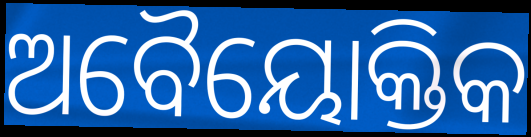
ଅବୈୟୋକ୍ତିକ